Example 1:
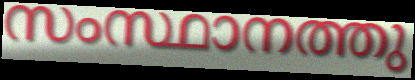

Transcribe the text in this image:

സംസ്ഥാനത്തു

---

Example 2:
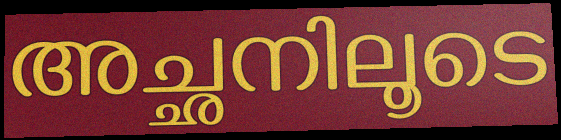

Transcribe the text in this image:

അച്ഛനിലൂടെ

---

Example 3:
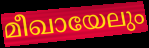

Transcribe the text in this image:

മീഖായേലും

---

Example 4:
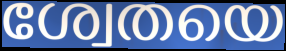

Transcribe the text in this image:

ശ്വേതയെ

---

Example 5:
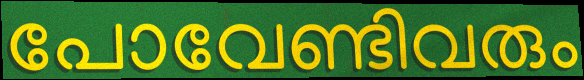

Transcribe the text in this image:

പോവേണ്ടിവരും